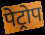
पेट्रोप